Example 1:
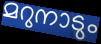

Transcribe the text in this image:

മറുനാടും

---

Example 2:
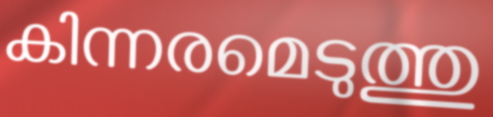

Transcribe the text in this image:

കിന്നരമെടുത്തു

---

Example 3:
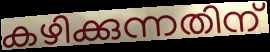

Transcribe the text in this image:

കഴിക്കുന്നതിന്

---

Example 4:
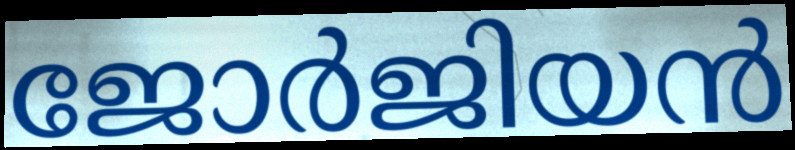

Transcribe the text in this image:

ജോർജിയൻ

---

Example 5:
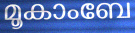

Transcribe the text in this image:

മൂകാംബേ